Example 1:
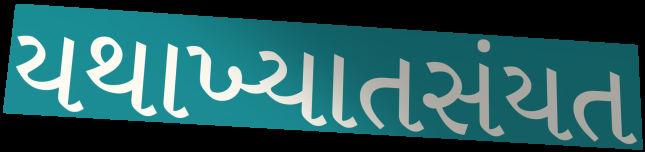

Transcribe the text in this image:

યથાખ્યાતસંયત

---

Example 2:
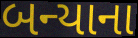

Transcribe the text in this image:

બન્યાના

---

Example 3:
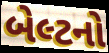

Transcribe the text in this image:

બેલ્ટનો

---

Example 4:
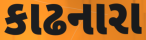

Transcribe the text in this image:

કાઢનારા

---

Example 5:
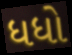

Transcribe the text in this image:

ધધો